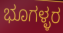
ಭೂಗಳ್ಳರ